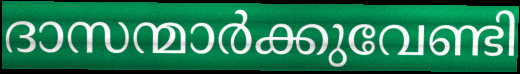
ദാസന്മാർക്കുവേണ്ടി